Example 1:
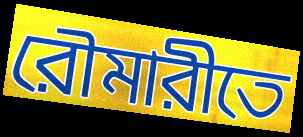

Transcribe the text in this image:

রৌমারীতে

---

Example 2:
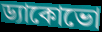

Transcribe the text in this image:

ড্যাকোভো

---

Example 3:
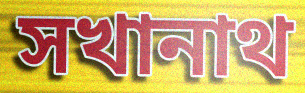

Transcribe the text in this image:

সখানাথ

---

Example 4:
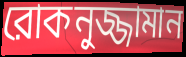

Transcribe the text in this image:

রোকনুজ্জামান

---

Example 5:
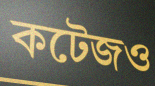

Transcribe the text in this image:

কটেজও